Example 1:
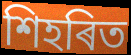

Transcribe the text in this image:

শিহৰিত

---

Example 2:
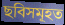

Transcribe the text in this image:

ছবিসমূহত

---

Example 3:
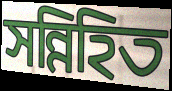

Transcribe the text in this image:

সন্নিহিত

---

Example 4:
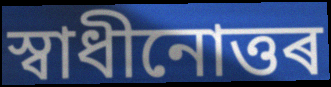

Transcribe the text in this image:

স্বাধীনোত্তৰ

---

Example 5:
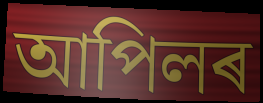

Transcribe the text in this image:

আপিলৰ